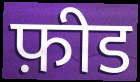
फ़ीड